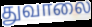
துவாலை